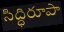
సిద్ధిరూపా